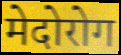
मेदोरोग